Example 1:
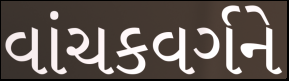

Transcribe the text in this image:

વાંચકવર્ગને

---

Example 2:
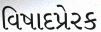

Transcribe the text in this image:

વિષાદપ્રેરક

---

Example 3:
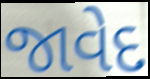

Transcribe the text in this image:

જાવેદ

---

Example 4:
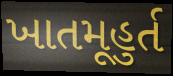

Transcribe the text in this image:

ખાતમૂહુર્ત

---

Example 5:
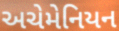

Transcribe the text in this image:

અચેમેનિયન